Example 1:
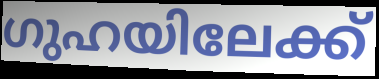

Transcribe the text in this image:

ഗുഹയിലേക്ക്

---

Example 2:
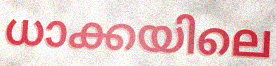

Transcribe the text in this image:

ധാക്കയിലെ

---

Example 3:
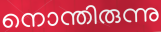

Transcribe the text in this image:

നൊന്തിരുന്നു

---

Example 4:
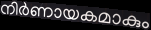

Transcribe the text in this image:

നിർണായകമാകും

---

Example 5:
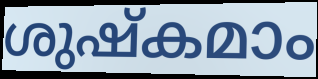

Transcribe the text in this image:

ശുഷ്കമാം